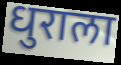
धुराला